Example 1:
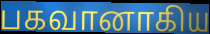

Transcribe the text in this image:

பகவானாகிய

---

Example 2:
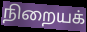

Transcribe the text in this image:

நிறையக்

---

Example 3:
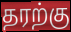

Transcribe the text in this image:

தரற்கு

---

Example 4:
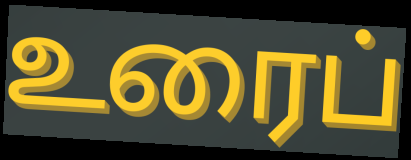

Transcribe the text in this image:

உரைப்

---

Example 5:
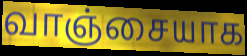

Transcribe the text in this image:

வாஞ்சையாக